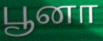
பூனா